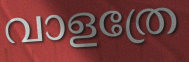
വാളത്രേ